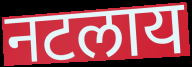
नटलाय